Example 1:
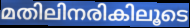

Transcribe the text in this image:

മതിലിനരികിലൂടെ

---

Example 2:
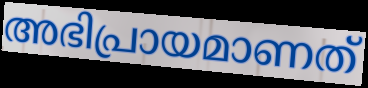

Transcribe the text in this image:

അഭിപ്രായമാണത്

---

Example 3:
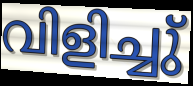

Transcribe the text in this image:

വിളിച്ചു്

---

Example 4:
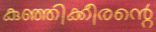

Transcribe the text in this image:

കുഞ്ഞിക്കീരന്റെ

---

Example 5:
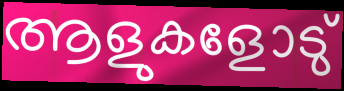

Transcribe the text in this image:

ആളുകളോടു്